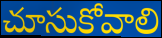
చూసుకోవాలి